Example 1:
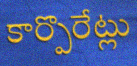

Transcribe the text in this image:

కార్పొరేట్లు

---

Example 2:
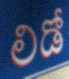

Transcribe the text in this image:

లిడో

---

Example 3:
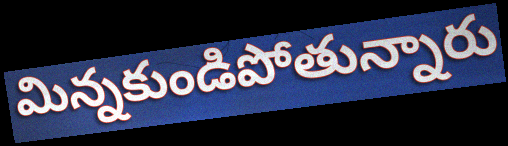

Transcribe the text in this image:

మిన్నకుండిపోతున్నారు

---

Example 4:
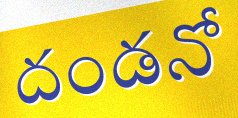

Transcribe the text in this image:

దండనో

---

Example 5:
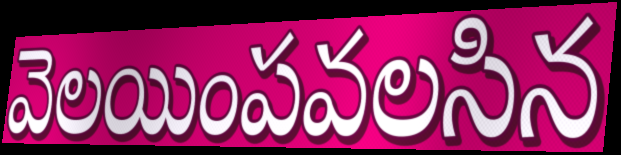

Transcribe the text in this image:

వెలయింపవలసిన